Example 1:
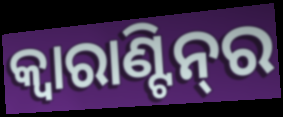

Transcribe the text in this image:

କ୍ବାରାଣ୍ଟିନ୍‌ର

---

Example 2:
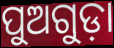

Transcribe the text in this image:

ପୁଅଗୁଡ଼ା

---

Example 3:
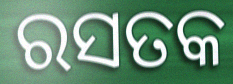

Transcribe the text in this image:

ରସତକ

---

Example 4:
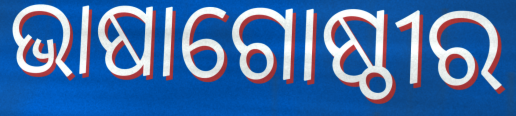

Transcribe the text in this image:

ଭାଷାଗୋଷ୍ଠୀର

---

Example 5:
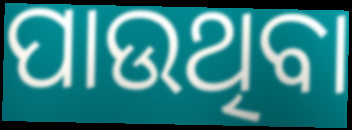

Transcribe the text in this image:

ପାଉଥିବା